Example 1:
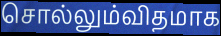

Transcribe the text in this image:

சொல்லும்விதமாக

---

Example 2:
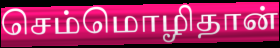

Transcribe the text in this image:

செம்மொழிதான்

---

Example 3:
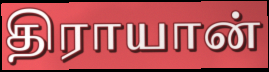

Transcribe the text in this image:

திராயான்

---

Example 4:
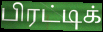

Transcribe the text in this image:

பிரட்டிக்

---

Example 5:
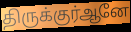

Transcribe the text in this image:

திருக்குர்ஆனே